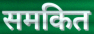
समकित